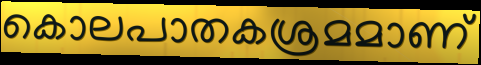
കൊലപാതകശ്രമമാണ്